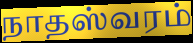
நாதஸ்வரம்